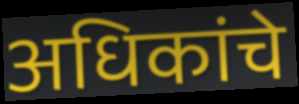
अधिकांचे